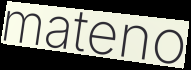
mateno